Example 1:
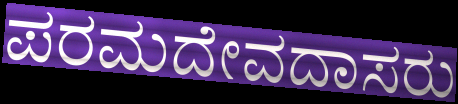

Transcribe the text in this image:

ಪರಮದೇವದಾಸರು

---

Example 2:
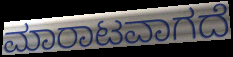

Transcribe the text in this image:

ಮಾರಾಟವಾಗದೆ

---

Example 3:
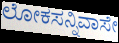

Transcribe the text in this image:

ಲೋಕಸನ್ನಿವಾಸೇ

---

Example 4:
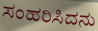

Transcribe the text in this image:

ಸಂಹರಿಸಿದನು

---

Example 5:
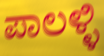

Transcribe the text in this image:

ಪಾಲಳ್ಳಿ